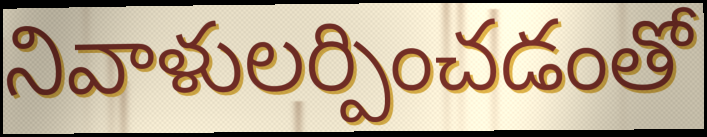
నివాళులర్పించడంతో